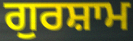
ਗੁਰਸ਼ਾਮ